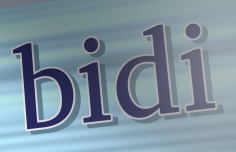
bidi